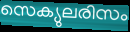
സെക്യുലരിസം